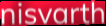
nisvarth